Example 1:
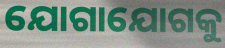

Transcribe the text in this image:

ଯୋଗାଯୋଗକୁ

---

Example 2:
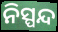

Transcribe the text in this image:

ନିସ୍ପନ୍ଦ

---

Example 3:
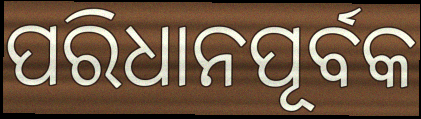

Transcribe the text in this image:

ପରିଧାନପୂର୍ବକ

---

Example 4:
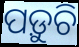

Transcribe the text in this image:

ପଡ଼ୁଚି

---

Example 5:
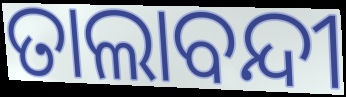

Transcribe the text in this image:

ତାଲାବନ୍ଦୀ